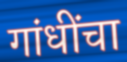
गांधींचा